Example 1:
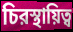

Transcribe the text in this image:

চিরস্থায়িত্ব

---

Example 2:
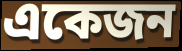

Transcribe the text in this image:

একেজন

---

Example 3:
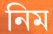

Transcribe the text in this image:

নিম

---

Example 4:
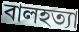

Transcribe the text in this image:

বালহত্যা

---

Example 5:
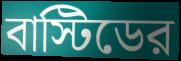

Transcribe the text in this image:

বাস্টিডের